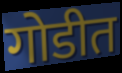
गोडीत